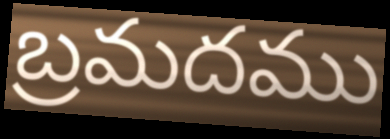
బ్రమదము